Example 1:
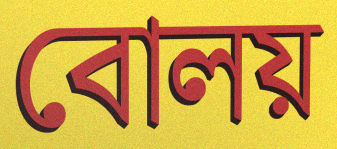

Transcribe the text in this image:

বোলয়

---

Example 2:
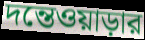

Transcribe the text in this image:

দন্তেওয়াড়ার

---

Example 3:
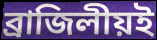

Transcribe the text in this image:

ব্রাজিলীয়ই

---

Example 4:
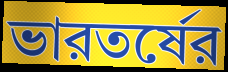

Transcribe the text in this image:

ভারতর্ষের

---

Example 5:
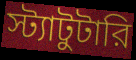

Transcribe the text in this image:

স্ট্যাটুটারি